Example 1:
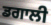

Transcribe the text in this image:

ਡਗਾਲੀ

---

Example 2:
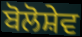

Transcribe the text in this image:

ਬੋਲੋਸ਼ੇਵ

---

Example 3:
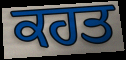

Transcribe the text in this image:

ਕਹਤ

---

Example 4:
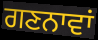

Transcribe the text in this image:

ਗਣਨਾਵਾਂ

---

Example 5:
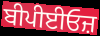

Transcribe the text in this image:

ਬੀਪੀਈਓਜ਼